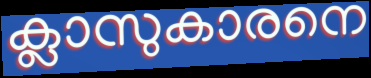
ക്ലാസുകാരനെ